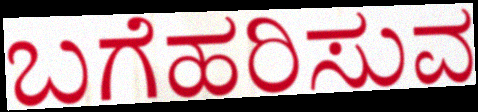
ಬಗೆಹರಿಸುವ